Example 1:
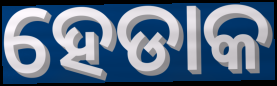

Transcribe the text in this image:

ହେଡାକ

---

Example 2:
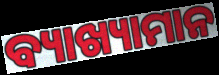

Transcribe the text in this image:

ବ୍ୟାଖ୍ୟାମାନ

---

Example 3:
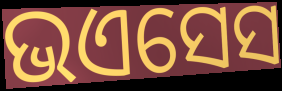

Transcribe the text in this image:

ଭଏସେସ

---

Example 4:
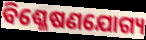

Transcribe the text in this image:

ବିଶ୍ଳେଷଣଯୋଗ୍ୟ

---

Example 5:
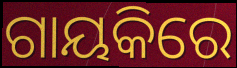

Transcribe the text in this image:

ଗାୟକିରେ